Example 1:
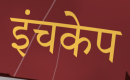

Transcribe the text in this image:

इंचकेप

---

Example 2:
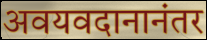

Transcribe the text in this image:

अवयवदानानंतर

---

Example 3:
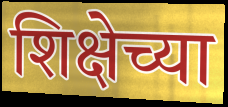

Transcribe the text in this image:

शिक्षेच्या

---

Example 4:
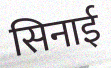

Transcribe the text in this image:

सिनाई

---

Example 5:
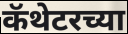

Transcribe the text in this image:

कॅथेटरच्या